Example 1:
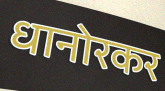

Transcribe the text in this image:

धानोरकर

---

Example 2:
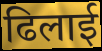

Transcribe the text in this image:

ढिलाई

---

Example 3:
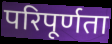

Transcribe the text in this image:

परिपूर्णता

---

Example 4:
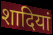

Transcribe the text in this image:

शादियां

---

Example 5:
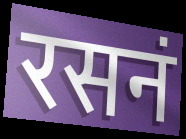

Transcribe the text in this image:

रसनं